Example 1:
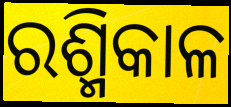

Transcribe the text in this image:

ରଶ୍ମିକାଳ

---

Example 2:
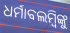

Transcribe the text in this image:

ଧର୍ମାବଲମ୍ବିଙ୍କୁ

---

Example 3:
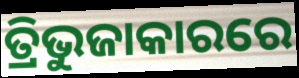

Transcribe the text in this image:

ତ୍ରିଭୁଜାକାରରେ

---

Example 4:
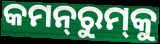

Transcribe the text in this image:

କମନ୍‍ରୁମ୍‍କୁ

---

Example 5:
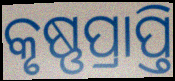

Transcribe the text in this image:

କୃଷ୍ଣପ୍ରାପ୍ତି